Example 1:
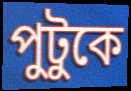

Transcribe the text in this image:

পুটুকে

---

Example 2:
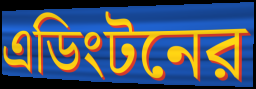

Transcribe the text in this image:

এডিংটনের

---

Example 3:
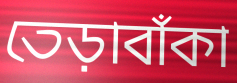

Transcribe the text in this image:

তেড়াবাঁকা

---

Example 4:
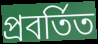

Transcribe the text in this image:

প্রবর্তিত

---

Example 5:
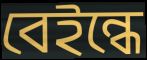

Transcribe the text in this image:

বেইন্ধে